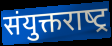
संयुक्तराष्ट्र